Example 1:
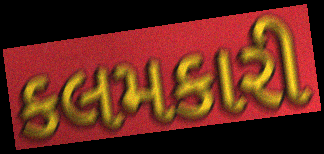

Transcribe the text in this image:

કલમકારી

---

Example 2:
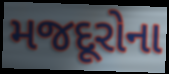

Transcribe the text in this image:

મજદૂરોના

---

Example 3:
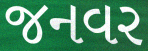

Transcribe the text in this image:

જનવર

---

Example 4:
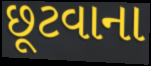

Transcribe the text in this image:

છૂટવાના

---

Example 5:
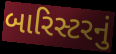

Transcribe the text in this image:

બારિસ્ટરનું